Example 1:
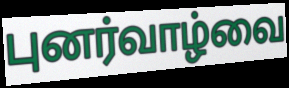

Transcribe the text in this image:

புனர்வாழ்வை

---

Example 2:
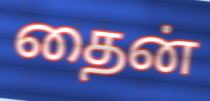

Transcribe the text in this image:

தைன்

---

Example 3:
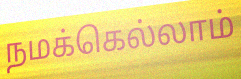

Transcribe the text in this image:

நமக்கெல்லாம்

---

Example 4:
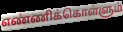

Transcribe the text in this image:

எண்ணிக்கொள்ளும்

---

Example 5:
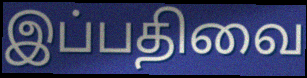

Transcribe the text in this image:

இப்பதிவை